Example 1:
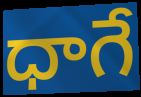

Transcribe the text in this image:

ధాగే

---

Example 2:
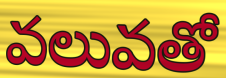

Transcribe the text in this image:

వలువతో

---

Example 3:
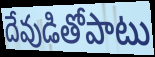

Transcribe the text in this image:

దేవుడితోపాటు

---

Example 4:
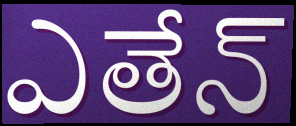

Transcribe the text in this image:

ఎతేన్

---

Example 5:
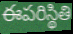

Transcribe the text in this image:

ఈపరిస్థితి